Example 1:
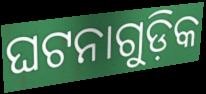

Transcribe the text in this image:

ଘଟନାଗୁଡ଼ିକ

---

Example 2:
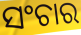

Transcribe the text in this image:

ସଂଚାର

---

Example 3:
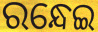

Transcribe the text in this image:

ରନ୍ଧେଇ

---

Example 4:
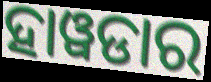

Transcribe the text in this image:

ହାୱଡାର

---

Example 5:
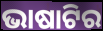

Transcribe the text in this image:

ଭାଷାଟିର